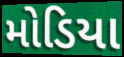
મોડિયા